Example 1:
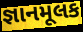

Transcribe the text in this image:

જ્ઞાનમૂલક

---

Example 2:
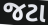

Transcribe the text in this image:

જટા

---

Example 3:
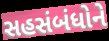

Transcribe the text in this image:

સહસંબંધોને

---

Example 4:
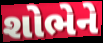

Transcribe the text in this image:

શોભેને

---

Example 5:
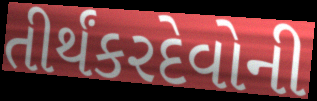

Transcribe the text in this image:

તીર્થંકરદેવોની